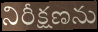
నిరీక్షణను